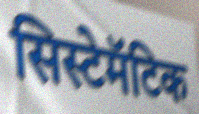
सिस्टेमॅटिक